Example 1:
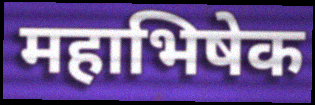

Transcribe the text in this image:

महाभिषेक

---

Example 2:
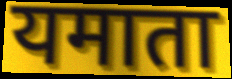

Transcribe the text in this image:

यमाता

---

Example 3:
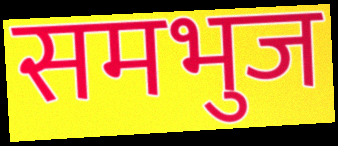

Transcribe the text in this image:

समभुज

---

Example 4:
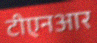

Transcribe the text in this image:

टीएनआर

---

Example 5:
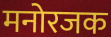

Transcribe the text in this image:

मनोरजक